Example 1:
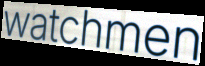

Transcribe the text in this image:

watchmen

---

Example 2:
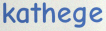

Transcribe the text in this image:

kathege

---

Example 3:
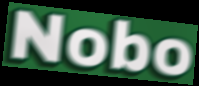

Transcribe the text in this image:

Nobo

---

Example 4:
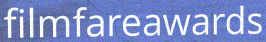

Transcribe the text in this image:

filmfareawards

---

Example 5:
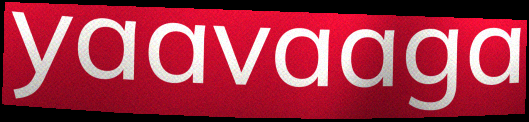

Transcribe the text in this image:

yaavaaga